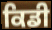
ਕਿਡੀ